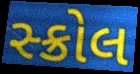
સ્ક્રોલ